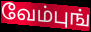
வேம்புங்